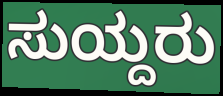
ಸುಯ್ದರು